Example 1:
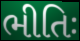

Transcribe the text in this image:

ભીતિઃ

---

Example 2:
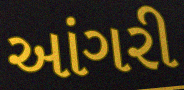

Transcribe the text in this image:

આંગરી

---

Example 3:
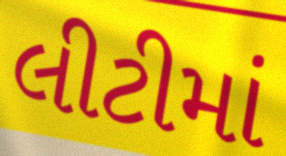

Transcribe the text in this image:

લીટીમાં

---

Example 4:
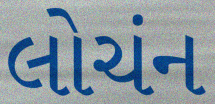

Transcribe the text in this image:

લોચંન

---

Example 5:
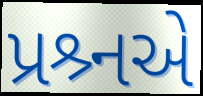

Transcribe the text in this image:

પ્રશ્ર્નએ